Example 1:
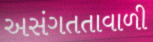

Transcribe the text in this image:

અસંગતતાવાળી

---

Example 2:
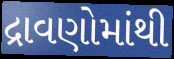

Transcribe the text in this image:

દ્રાવણોમાંથી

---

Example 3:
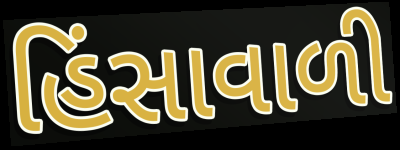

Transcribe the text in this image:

હિંસાવાળી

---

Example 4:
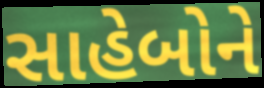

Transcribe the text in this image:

સાહેબોને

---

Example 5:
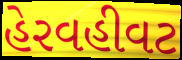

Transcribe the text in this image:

હેરવહીવટ